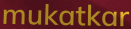
mukatkar